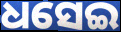
ଧସେଇ